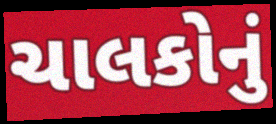
ચાલકોનું